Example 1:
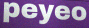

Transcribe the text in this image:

peyeo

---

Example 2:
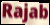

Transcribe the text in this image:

Rajab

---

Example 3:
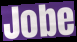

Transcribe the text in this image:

Jobe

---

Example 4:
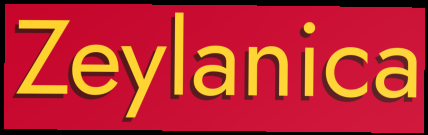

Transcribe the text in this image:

Zeylanica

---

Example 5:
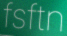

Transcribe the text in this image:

fsftn